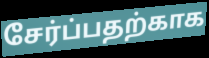
சேர்ப்பதற்காக